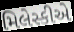
મિલેસ્કીએ